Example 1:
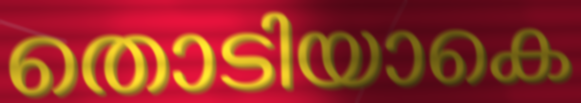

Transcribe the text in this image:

തൊടിയാകെ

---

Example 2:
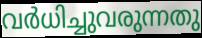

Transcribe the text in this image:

വർധിച്ചുവരുന്നതു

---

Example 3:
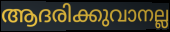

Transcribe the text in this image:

ആദരിക്കുവാനല്ല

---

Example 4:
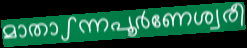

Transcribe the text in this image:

മാതാഽന്നപൂർണേശ്വരീ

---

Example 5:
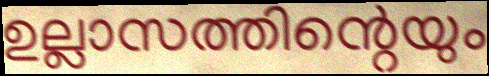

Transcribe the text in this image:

ഉല്ലാസത്തിന്റെയും